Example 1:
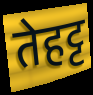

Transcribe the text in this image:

तेहट्ट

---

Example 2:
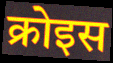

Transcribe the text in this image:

क्रोइस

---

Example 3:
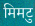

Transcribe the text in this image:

मिमटु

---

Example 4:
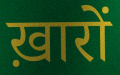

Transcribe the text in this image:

ख़ारों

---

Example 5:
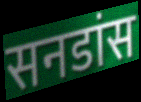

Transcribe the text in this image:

सनडांस